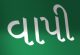
વાપી